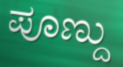
ಪೂಣ್ದು